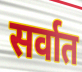
सर्वात